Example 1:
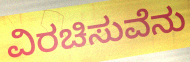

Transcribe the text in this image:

ವಿರಚಿಸುವೆನು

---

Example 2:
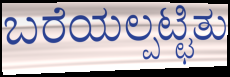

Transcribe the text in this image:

ಬರೆಯಲ್ಪಟ್ಟಿತು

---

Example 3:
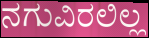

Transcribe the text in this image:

ನಗುವಿರಲಿಲ್ಲ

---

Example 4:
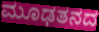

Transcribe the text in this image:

ಮೂಢತನದ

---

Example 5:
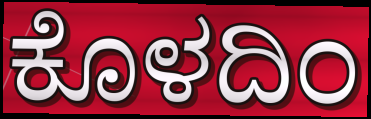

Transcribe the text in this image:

ಕೊಳದಿಂ